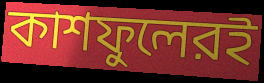
কাশফুলেরই